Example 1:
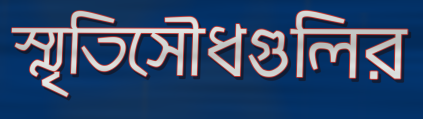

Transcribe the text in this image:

স্মৃতিসৌধগুলির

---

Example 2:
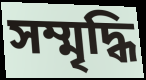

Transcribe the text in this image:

সম্মৃদ্ধি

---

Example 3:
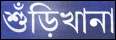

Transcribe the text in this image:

শুঁড়িখানা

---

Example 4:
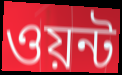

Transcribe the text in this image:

ওয়ন্ট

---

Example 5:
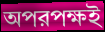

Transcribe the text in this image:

অপরপক্ষই